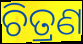
ଚିତ୍ରଣ